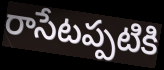
రాసేటప్పటికి